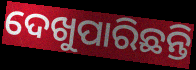
ଦେଖୁପାରିଛନ୍ତି